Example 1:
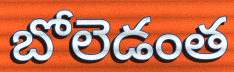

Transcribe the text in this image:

బోలెడంత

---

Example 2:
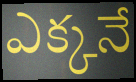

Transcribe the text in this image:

ఎక్కనే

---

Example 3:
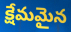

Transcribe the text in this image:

క్షేమమైన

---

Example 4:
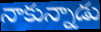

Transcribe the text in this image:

నాకున్నాడు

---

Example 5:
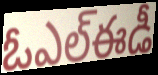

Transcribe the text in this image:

ఓఎల్ఈడీ